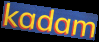
kadam